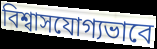
বিশ্বাসযোগ্যভাবে